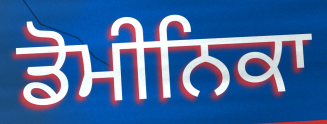
ਡੋਮੀਨਿਕਾ